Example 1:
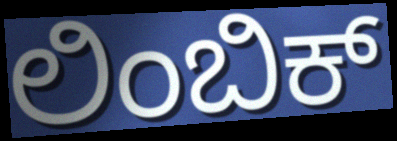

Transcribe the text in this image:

ಲಿಂಬಿಕ್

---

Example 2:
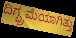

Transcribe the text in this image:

ದಿಗ್ಭ್ರಮೆಯಾಗಿತ್ತು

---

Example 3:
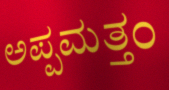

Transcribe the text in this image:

ಅಪ್ಪಮತ್ತಂ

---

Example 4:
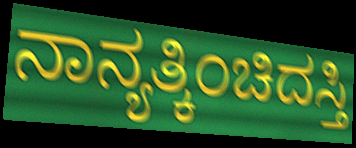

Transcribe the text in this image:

ನಾನ್ಯತ್ಕಿಂಚಿದಸ್ತಿ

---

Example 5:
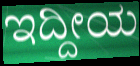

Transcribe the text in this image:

ಇದ್ದೀಯ